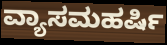
ವ್ಯಾಸಮಹರ್ಷಿ